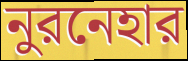
নুরনেহার